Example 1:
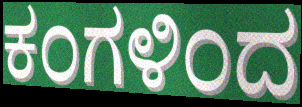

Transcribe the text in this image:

ಕಂಗಳಿಂದ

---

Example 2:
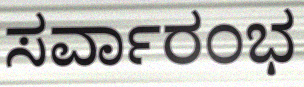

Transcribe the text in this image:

ಸರ್ವಾರಂಭ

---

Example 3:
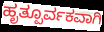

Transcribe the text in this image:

ಹೃತ್ಪೂರ್ವಕವಾಗಿ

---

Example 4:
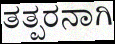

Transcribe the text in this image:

ತತ್ಪರನಾಗಿ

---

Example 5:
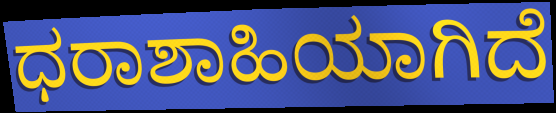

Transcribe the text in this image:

ಧರಾಶಾಹಿಯಾಗಿದೆ